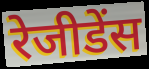
रेजीडेंस